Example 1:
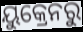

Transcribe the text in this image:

ୟୁକ୍ରେନରୁ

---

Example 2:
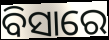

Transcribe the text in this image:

ବିସାରେ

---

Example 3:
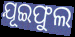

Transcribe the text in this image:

ଯୂଇଫୁଲ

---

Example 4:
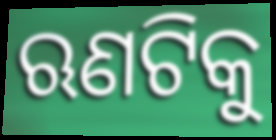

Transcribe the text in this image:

ଋଣଟିକୁ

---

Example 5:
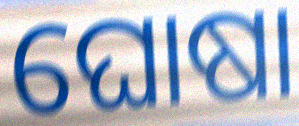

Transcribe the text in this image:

ଘୋଷା